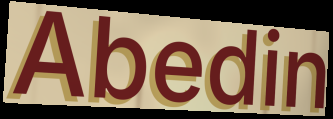
Abedin